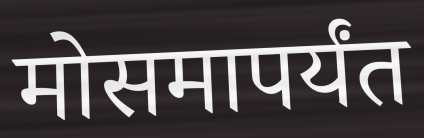
मोसमापर्यंत